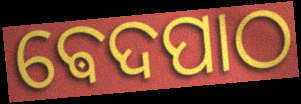
ଵେଦପାଠ